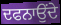
ਦਫਨਾਉਂਦੇ